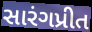
સારંગપ્રીત